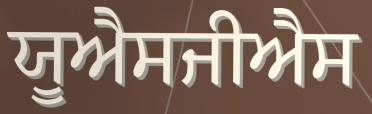
ਯੂਐਸਜੀਐਸ